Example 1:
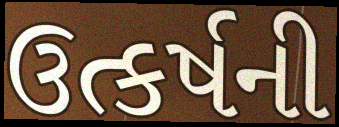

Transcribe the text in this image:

ઉત્કર્ષની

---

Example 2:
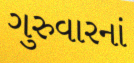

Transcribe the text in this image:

ગુરુવારનાં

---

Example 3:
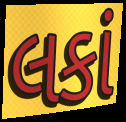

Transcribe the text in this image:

લકાં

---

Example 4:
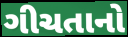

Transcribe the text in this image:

ગીચતાનો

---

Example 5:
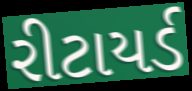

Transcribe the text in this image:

રીટાયર્ડ